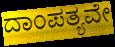
ದಾಂಪತ್ಯವೇ